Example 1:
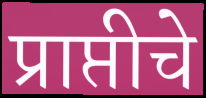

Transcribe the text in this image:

प्राप्तीचे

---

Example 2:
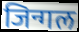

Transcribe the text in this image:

जिन्गल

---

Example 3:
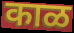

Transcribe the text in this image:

काळ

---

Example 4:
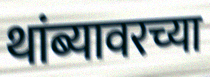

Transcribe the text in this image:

थांब्यावरच्या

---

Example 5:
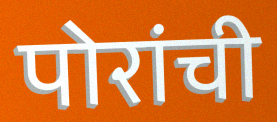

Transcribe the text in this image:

पोरांची